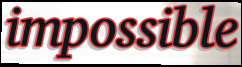
impossible